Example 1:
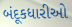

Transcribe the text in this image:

બંદૂકધારીઓ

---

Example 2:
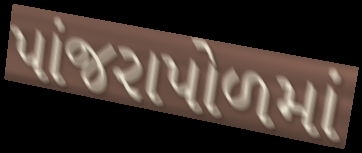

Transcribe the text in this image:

પાંજરાપોળમાં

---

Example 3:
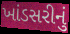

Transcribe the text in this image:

ખાંડસરીનું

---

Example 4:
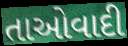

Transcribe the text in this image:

તાઓવાદી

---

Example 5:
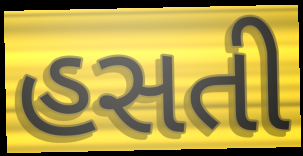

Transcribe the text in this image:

હસતી